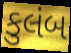
કુલંબ